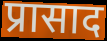
प्रासाद